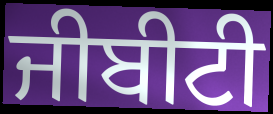
ਜੀਬੀਟੀ